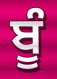
ਬੂੰ